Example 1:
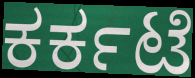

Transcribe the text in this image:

ಕರ್ಕಟೆ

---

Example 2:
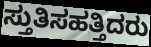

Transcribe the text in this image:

ಸ್ತುತಿಸಹತ್ತಿದರು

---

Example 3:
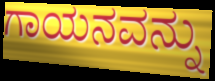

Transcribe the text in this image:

ಗಾಯನವನ್ನು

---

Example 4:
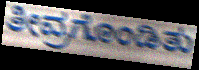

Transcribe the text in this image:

ತೀವ್ರಗೊಂಡಿತು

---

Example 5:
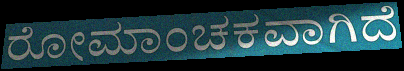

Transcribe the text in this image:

ರೋಮಾಂಚಕವಾಗಿದೆ